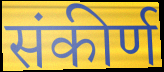
संकीर्ण